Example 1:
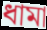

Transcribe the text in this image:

ধামা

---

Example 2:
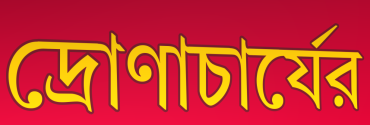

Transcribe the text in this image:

দ্রোণাচার্যের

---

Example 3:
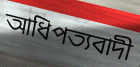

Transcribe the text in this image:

আধিপত্যবাদী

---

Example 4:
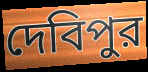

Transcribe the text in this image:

দেবিপুর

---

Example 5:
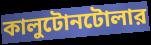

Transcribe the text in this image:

কালুটোনটোলার